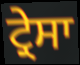
ਟ੍ਰੇਸਾ